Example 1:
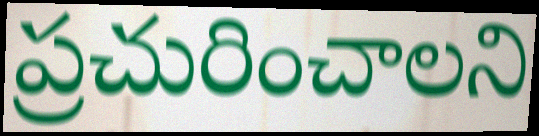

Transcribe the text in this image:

ప్రచురించాలని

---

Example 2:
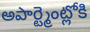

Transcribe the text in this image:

అపార్ట్మెంట్లోకి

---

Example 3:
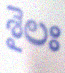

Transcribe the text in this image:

శైలః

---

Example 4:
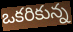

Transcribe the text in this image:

ఒకరికున్న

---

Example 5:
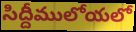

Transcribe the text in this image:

సిద్దీములోయలో